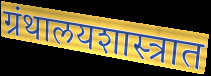
ग्रंथालयशास्त्रात